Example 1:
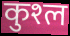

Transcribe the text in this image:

कुश्ल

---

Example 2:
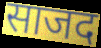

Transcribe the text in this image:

साजद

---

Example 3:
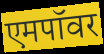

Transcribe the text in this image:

एमपॉवर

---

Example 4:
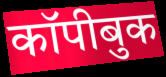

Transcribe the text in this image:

कॉपीबुक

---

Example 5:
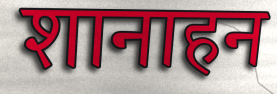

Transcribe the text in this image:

शानाहन